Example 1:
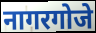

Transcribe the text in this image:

नागरगोजे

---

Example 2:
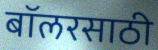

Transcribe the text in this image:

बॉलरसाठी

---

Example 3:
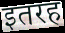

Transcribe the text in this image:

इतरह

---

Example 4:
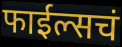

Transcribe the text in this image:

फाईल्सचं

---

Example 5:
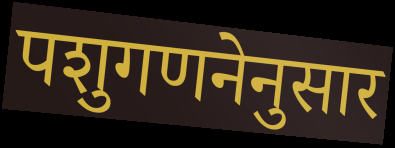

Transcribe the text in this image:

पशुगणनेनुसार